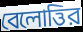
বেলোত্তির